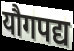
यौगपद्य